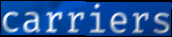
carriers